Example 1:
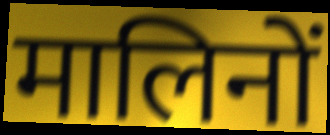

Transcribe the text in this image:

मालिनों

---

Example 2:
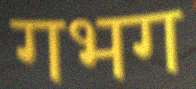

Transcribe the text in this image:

गभग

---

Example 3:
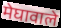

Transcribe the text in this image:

मेघावाले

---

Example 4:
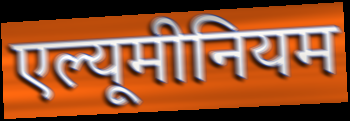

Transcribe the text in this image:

एल्‍यूमीनियम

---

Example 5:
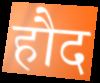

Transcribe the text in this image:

हौद